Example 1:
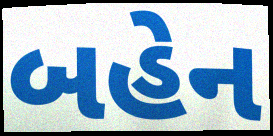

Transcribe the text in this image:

બહેન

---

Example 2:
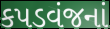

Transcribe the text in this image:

કપડવંજનાં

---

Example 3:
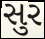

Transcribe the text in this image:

સુર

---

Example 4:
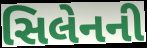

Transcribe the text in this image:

સિલેનની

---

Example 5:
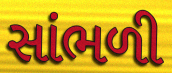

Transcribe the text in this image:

સાંભળી